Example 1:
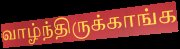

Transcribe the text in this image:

வாழ்ந்திருக்காங்க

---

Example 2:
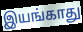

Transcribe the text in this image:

இயங்காது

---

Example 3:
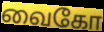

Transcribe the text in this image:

வைகோ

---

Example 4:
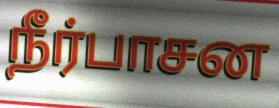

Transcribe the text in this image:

நீர்பாசன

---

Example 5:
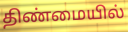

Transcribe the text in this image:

திண்மையில்